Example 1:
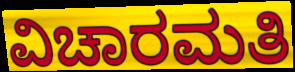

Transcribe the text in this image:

ವಿಚಾರಮತಿ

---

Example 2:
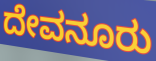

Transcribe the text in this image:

ದೇವನೂರು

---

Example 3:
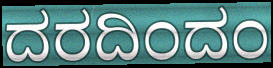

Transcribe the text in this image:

ದರದಿಂದಂ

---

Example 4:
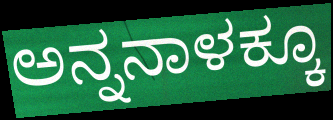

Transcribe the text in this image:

ಅನ್ನನಾಳಕ್ಕೂ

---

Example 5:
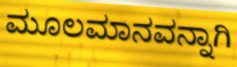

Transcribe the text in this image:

ಮೂಲಮಾನವನ್ನಾಗಿ